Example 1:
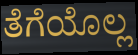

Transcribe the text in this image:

ತೆಗೆಯೊಲ್ಲ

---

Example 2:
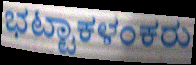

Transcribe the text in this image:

ಭಟ್ಟಾಕಳಂಕರು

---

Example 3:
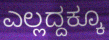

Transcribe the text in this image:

ಎಲ್ಲದ್ದಕ್ಕೂ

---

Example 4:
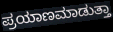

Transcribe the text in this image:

ಪ್ರಯಾಣಮಾಡುತ್ತಾ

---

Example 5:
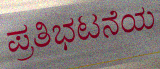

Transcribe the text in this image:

ಪ್ರತಿಭಟನೆಯ